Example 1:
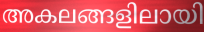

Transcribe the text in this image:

അകലങ്ങളിലായി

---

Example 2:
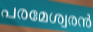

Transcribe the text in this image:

പരമേശ്വരൻ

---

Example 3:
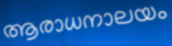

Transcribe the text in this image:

ആരാധനാലയം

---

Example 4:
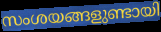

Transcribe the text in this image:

സംശയങ്ങളുണ്ടായി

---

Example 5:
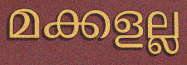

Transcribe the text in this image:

മക്കളല്ല